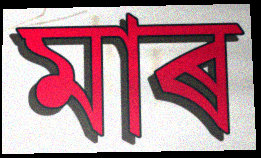
মাৰ